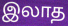
இலாத